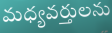
మధ్యవర్తులను